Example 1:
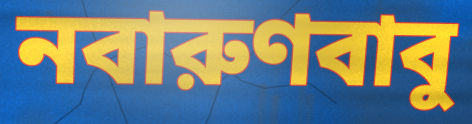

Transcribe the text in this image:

নবারুণবাবু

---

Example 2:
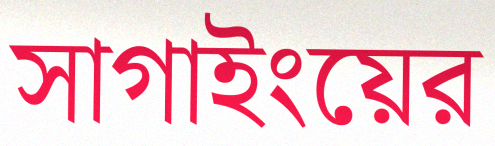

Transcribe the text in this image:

সাগাইংয়ের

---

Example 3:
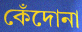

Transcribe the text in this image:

কেঁদোনা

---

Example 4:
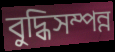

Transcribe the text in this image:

বুদ্ধিসম্পন্ন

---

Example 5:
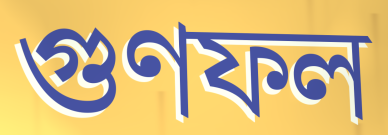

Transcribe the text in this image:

গুণফল